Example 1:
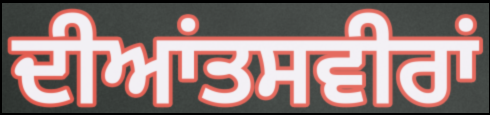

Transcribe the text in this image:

ਦੀਆਂਤਸਵੀਰਾਂ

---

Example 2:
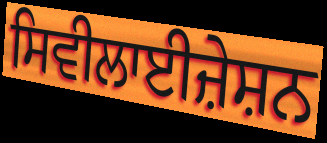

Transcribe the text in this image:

ਸਿਵੀਲਾਈਜ਼ੇਸ਼ਨ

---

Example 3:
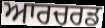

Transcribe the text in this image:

ਆਰਚਰਡ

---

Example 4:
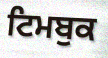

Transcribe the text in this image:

ਟਿਮਬੁਕ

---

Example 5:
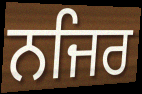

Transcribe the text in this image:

ਨਜਿਰ